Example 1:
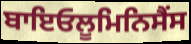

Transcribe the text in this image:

ਬਾਇਓਲੂਮਿਨਿਸੈਂਸ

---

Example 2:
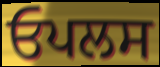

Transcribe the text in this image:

ਓਪਲਸ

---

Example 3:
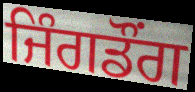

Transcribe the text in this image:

ਜਿੰਗਡੌਂਗ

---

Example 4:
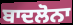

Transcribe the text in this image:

ਬਾਦਲੋਨਾ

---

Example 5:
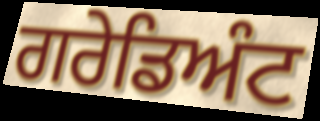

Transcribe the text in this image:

ਗਰੇਡਿਅੰਟ